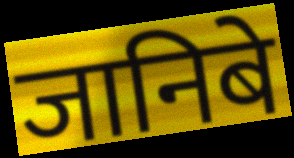
जानिबे